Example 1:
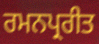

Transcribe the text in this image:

ਰਮਨਪ੍ਰਰੀਤ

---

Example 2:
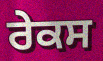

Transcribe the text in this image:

ਰੇਕਸ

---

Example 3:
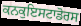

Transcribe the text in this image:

ਕਨਕੁਇਸਟਾਡੋਰਸ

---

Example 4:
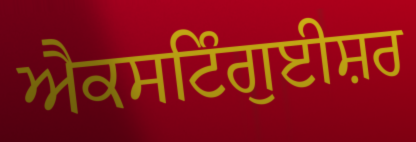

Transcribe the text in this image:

ਐਕਸਟਿੰਗੁਈਸ਼ਰ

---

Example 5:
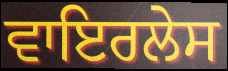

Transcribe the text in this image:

ਵਾਇਰਲੇਸ